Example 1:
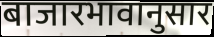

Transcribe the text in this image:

बाजारभावानुसार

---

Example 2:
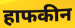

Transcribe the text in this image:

हाफकीन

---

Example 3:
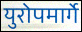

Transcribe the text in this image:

युरोपमार्गे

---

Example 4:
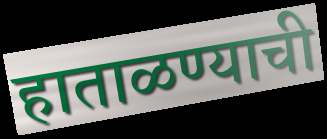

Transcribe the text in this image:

हाताळण्याची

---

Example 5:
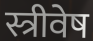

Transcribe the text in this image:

स्त्रीवेष